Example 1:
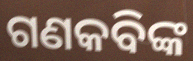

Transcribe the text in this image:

ଗଣକବିଙ୍କ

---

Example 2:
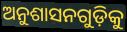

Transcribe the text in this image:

ଅନୁଶାସନଗୁଡ଼ିକୁ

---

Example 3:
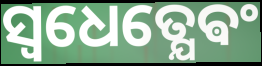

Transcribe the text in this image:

ସ୍ଵଧେତ୍ଯେଵଂ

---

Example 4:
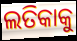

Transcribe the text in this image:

ଲତିକାକୁ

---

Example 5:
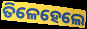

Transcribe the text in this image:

ତିଳେହେଲେ